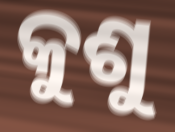
କୁଶୁ